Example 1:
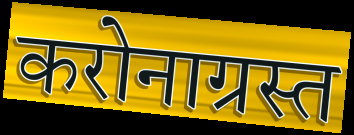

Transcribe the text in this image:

करोनाग्रस्त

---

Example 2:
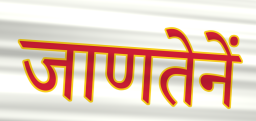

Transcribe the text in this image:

जाणतेनें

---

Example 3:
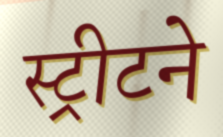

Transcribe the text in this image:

स्ट्रीटने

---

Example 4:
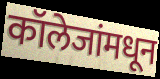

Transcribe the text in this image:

कॉलेजांमधून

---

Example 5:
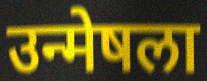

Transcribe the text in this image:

उन्मेषला